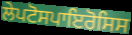
ਲੇਪਟੋਸਪਾਇਰੋਸਿਸ